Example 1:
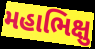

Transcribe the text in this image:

મહાભિક્ષુ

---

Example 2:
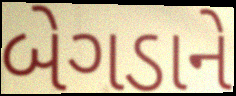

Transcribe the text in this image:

બેગડાને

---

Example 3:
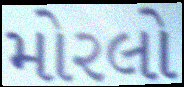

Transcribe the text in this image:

મોરલો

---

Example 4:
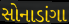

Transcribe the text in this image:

સોનાડાંગા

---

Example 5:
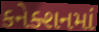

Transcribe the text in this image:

કનેક્શનમાં